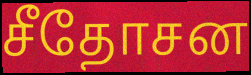
சீதோசன